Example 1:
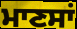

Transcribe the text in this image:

ਮਾਣਸਾਂ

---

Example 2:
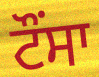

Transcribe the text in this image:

ਟੌਂਸਾ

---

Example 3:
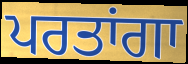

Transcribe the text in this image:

ਪਰਤਾਂਗਾ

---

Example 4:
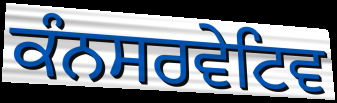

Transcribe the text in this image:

ਕੰਨਸਰਵੇਟਿਵ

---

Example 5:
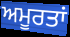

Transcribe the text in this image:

ਅਮੂਰਤਾਂ